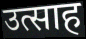
उत्साह